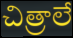
చిత్రాలే